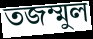
তজম্মুল